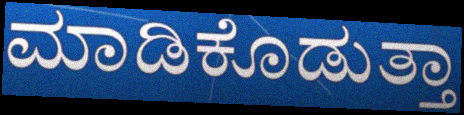
ಮಾಡಿಕೊಡುತ್ತಾ